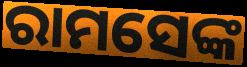
ରାମସେଙ୍କ